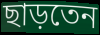
ছাড়তেন